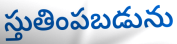
స్తుతింపబడును